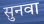
सुनवा